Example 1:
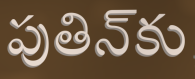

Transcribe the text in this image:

పుతిన్‌కు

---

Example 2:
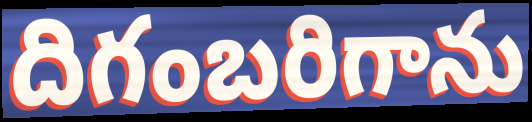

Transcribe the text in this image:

దిగంబరిగాను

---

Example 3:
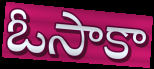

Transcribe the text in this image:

ఓసాకా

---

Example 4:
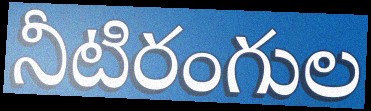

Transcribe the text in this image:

నీటిరంగుల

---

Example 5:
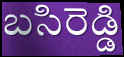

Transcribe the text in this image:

బసిరెడ్డి